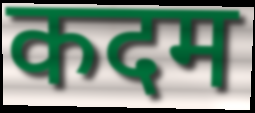
कदम